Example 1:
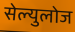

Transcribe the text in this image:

सेल्युलोज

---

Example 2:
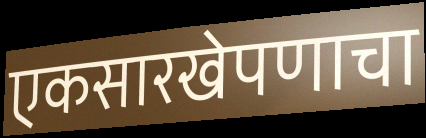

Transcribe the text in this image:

एकसारखेपणाचा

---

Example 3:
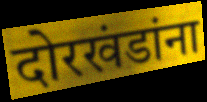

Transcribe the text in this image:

दोरखंडांना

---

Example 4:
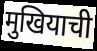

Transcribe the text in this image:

मुखियाची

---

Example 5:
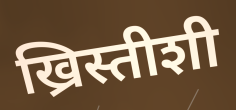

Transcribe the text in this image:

ख्रिस्तीशी